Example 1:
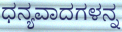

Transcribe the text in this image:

ಧನ್ಯವಾದಗಳನ್ನ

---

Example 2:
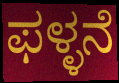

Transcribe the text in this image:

ಫಳ್ಳನೆ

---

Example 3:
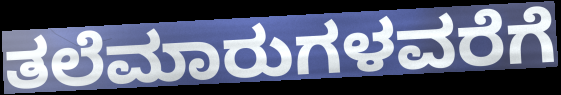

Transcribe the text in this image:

ತಲೆಮಾರುಗಳವರೆಗೆ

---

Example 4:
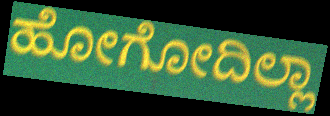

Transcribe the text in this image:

ಹೋಗೋದಿಲ್ಲಾ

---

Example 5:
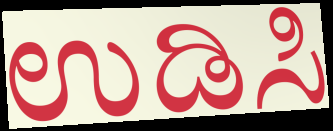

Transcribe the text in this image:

ಉಡಿಸಿ